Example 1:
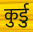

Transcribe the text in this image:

कुर्डु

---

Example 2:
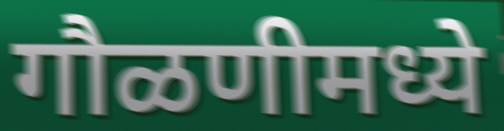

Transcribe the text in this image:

गौळणीमध्ये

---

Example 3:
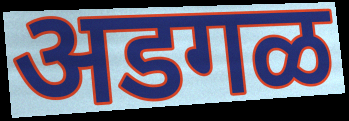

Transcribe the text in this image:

अडगळ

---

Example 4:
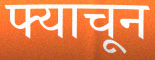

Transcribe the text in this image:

फ्याचून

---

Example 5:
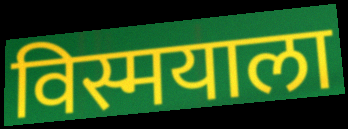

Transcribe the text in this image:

विस्मयाला